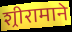
श्रीरामाने